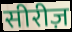
सीरीज़